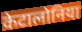
केटालोनिया